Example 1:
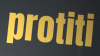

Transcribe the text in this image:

protiti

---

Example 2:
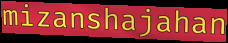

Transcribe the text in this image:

mizanshajahan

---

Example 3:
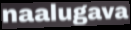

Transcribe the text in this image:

naalugava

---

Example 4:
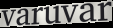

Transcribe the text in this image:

varuvar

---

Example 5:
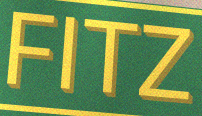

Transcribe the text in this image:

FITZ